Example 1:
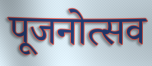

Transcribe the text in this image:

पूजनोत्सव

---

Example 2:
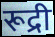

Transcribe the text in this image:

रूद्री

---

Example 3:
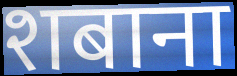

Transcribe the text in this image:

शबाना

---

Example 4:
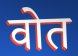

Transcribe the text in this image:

वोत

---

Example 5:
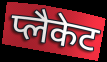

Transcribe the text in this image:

प्लैकेट